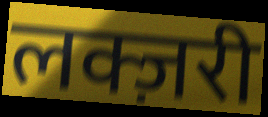
लक्ज़री